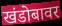
खंडोबावर